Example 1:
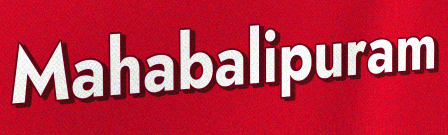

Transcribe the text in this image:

Mahabalipuram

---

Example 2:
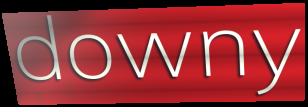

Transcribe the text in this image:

downy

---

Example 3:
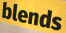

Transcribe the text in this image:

blends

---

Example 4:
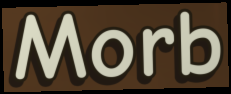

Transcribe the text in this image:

Morb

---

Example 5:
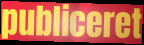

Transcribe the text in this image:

publiceret